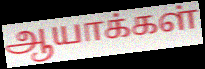
ஆயாக்கள்